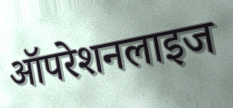
ऑपरेशनलाइज